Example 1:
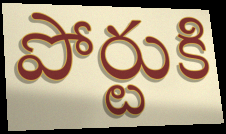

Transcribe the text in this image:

పోర్టుకి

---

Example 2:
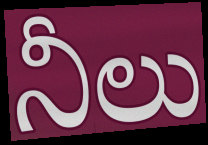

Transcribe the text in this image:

నీలు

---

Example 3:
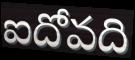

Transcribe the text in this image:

ఐదోవది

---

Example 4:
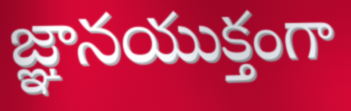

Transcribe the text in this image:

జ్ఞానయుక్తంగా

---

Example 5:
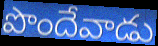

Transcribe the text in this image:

పొందేవాడు